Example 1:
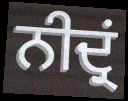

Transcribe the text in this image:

ਨੀਦ੍ਰਂ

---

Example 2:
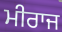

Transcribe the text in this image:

ਮੀਰਾਜ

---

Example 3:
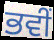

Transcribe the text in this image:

ਭਵੀਂ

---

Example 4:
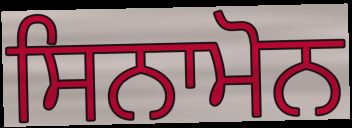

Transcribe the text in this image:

ਸਿਨਾਮੋਨ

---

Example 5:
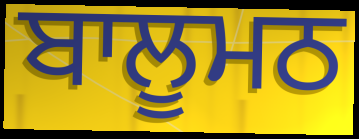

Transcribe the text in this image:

ਬਾਲੂਮਠ